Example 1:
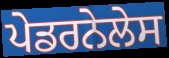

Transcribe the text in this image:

ਪੇਡਰਨੇਲੇਸ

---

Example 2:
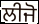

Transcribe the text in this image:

ਲੀਜੋ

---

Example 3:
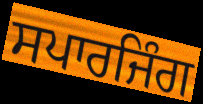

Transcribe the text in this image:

ਸਪਾਰਜਿੰਗ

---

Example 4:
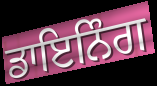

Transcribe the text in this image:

ਡਾਇਨਿੰਗ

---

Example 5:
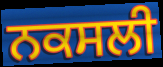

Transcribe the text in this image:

ਨਕਸਲੀ